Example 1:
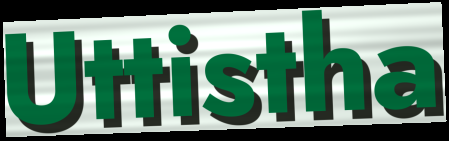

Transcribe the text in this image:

Uttistha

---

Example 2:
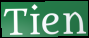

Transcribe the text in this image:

Tien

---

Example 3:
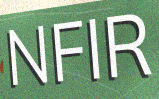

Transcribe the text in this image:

NFIR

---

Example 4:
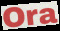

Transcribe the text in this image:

Ora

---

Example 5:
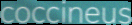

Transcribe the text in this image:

coccineus